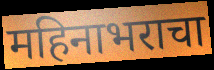
महिनाभराचा